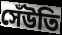
সেঁউতি